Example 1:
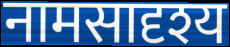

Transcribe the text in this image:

नामसादृश्य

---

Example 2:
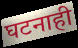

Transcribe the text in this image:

घटनाही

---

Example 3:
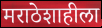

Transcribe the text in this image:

मराठेशाहीला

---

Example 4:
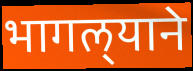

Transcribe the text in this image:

भागल्याने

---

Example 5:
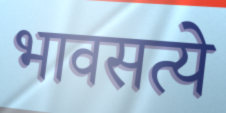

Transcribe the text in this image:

भावसत्ये